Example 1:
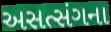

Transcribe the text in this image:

અસત્સંગના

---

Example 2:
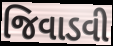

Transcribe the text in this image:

જિવાડવી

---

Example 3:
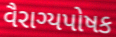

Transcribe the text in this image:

વૈરાગ્યપોષક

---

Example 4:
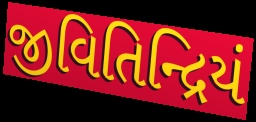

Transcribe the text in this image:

જીવિતિન્દ્રિયં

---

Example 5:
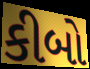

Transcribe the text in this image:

કીબો